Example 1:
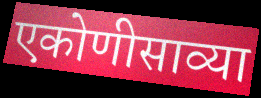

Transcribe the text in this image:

एकोणीसाव्या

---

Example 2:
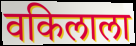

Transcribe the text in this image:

वकिलाला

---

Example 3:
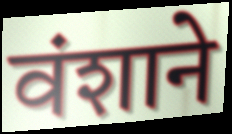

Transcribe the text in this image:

वंशाने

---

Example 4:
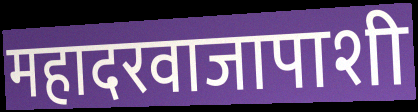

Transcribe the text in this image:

महादरवाजापाशी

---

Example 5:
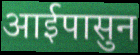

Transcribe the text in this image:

आईपासुन